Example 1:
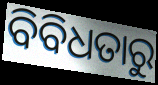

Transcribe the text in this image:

ବିବିଧତାରୁ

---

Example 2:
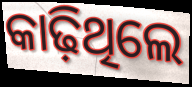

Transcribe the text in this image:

କାଢ଼ିଥିଲେ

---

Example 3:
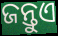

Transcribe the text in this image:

ଜନ୍ତୁଏ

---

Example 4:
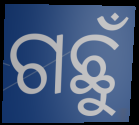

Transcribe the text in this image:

ଗଛୁଁ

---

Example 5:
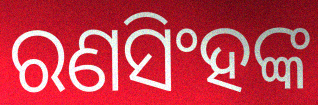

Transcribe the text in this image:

ରଣସିଂହଙ୍କ